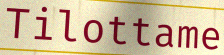
Tilottame